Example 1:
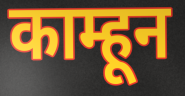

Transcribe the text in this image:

काम्हून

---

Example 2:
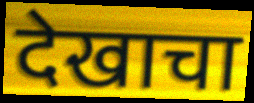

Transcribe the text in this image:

देखाचा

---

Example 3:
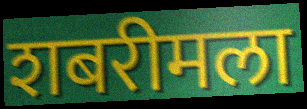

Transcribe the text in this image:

शबरीमला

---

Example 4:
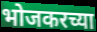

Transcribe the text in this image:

भोजकरच्या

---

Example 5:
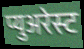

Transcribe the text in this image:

प्युअरेस्ट